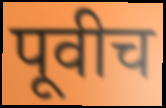
पूवीच